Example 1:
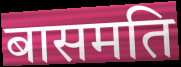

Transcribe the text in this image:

बासमति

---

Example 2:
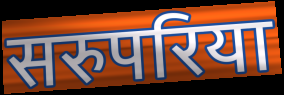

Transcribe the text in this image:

सरुपरिया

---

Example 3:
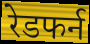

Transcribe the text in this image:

रेडफर्न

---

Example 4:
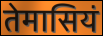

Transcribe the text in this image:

तेमासियं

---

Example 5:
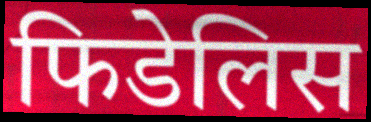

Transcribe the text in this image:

फिडेलिस